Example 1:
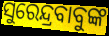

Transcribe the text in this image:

ସୁରେନ୍ଦ୍ରବାବୁଙ୍କ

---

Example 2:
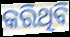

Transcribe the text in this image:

କରିଥିବି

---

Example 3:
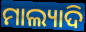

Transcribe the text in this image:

ମାଲ୍ୟାଦି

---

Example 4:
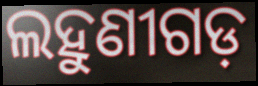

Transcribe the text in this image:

ଲହୁଣୀଗଡ଼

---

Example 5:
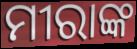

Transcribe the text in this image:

ମୀରାଙ୍କ